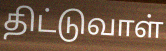
திட்டுவாள்